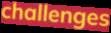
challenges